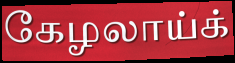
கேழலாய்க்